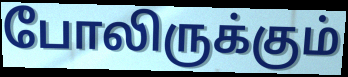
போலிருக்கும்